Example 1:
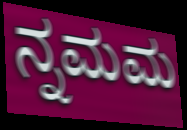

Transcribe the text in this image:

ನ್ನಮಮ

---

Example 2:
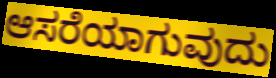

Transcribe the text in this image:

ಆಸರೆಯಾಗುವುದು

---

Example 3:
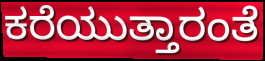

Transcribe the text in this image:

ಕರೆಯುತ್ತಾರಂತೆ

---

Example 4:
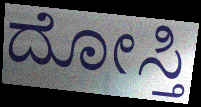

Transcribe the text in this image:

ದೋಸ್ತಿ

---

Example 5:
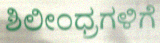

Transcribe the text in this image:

ಶಿಲೀಂಧ್ರಗಳಿಗೆ